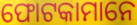
ଫୋଟକାମାନେ